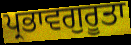
ਪ੍ਰਭਾਵਗੁਰੂਤਾ